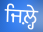
ਜਿਲ਼੍ਹੇ